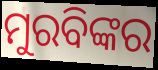
ମୁରବିଙ୍କର